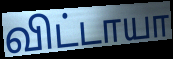
விட்டாயா